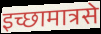
इच्छामात्रसे